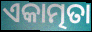
ଏକାତ୍ମତା